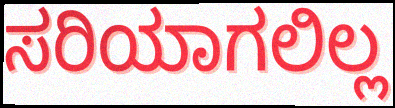
ಸರಿಯಾಗಲಿಲ್ಲ